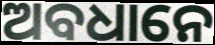
ଅବଧାନେ